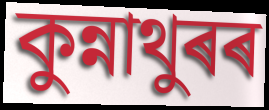
কুন্নাথুৰৰ